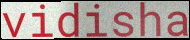
vidisha